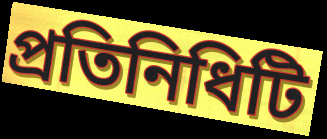
প্রতিনিধিটি